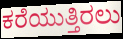
ಕರೆಯುತ್ತಿರಲು